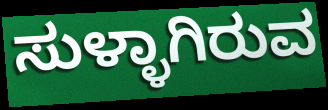
ಸುಳ್ಳಾಗಿರುವ